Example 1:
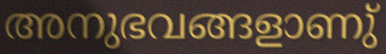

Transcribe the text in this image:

അനുഭവങ്ങളാണു്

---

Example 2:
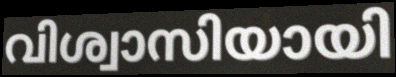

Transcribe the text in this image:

വിശ്വാസിയായി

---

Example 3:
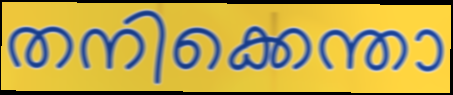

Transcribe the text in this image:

തനിക്കെന്താ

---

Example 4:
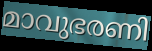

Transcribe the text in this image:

മാവുഭരണി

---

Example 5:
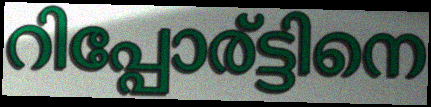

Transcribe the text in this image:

റിപ്പോര്ട്ടിനെ